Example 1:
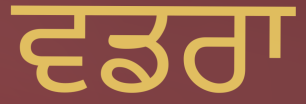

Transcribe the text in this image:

ਵਡਰਾ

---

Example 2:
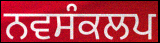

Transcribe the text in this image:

ਨਵਸੰਕਲਪ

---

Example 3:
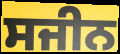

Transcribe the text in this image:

ਸਜੀਨ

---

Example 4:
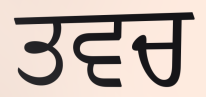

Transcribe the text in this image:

ਤਵਚ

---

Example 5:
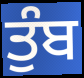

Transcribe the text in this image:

ਤੁੰਬ